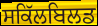
ਸਕਿੱਲਬਿਲਡ